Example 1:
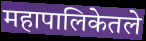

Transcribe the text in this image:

महापालिकेतले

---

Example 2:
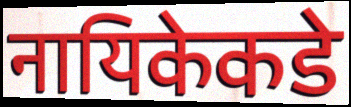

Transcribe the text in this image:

नायिकेकडे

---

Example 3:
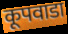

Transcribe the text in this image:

कूपवाडा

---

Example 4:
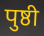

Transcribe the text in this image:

पुष्ठी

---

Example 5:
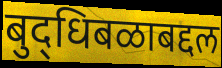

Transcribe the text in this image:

बुद्धिबळाबद्दल